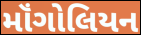
મૉંગોલિયન